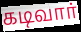
கடிவார்